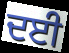
ਦਈ